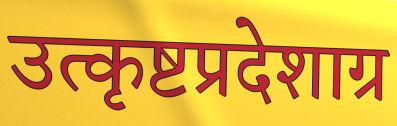
उत्कृष्टप्रदेशाग्र